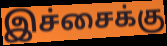
இச்சைக்கு